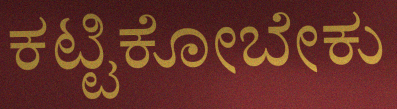
ಕಟ್ಟಿಕೋಬೇಕು